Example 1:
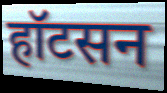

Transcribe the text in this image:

हॉटसन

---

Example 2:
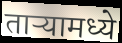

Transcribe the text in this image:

ताऱ्यामध्ये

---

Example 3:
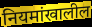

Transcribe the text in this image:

नियमांखालील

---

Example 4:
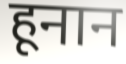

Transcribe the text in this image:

हूनान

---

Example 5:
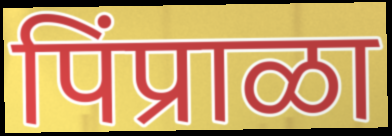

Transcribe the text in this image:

पिंप्राळा